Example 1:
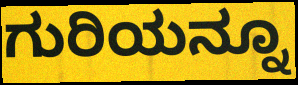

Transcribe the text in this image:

ಗುರಿಯನ್ನೂ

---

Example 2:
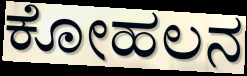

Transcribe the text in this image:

ಕೋಹಲನ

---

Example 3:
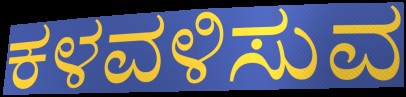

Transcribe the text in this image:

ಕಳವಳಿಸುವ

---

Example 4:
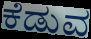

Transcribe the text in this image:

ಕೆಡುವ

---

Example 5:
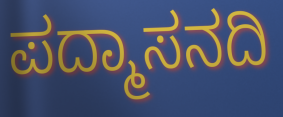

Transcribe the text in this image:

ಪದ್ಮಾಸನದಿ